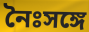
নৈঃসঙ্গে